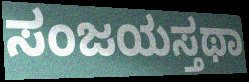
ಸಂಜಯಸ್ತಥಾ